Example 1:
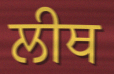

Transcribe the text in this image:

ਲੀਥ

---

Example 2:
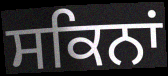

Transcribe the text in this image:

ਸਕਿਨਾਂ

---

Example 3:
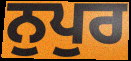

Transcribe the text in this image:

ਨੁਪੁਰ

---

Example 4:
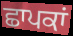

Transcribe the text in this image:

ਛਾਪਕਾਂ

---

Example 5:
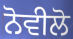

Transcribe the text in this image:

ਨੋਵੀਲੋ